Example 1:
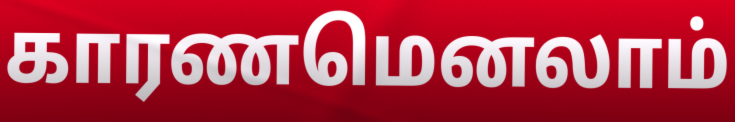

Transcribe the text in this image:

காரணமெனலாம்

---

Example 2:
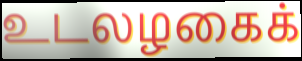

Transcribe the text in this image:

உடலழகைக்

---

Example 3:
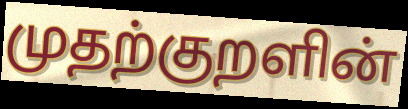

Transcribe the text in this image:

முதற்குறளின்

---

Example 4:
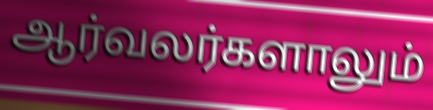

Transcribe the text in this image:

ஆர்வலர்களாலும்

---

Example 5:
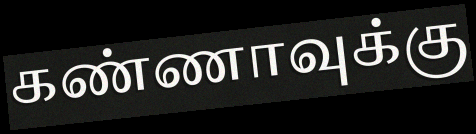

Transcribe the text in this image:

கண்ணாவுக்கு